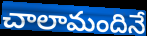
చాలామందినే